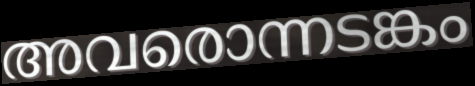
അവരൊന്നടങ്കം